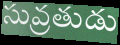
సువ్రతుడు